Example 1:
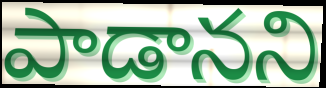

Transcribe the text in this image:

పాడానని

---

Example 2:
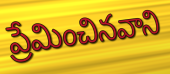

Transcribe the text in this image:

ప్రేమించినవాని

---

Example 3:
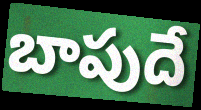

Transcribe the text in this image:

బాపుదే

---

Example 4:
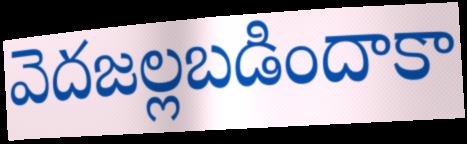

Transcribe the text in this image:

వెదజల్లబడిందాకా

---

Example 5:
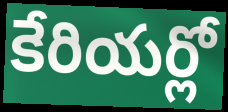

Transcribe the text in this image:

కేరియర్లో